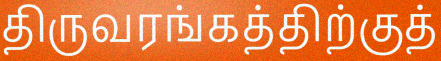
திருவரங்கத்திற்குத்